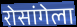
रोसांगेला